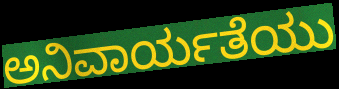
ಅನಿವಾರ್ಯತೆಯು